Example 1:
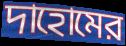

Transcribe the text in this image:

দাহোমের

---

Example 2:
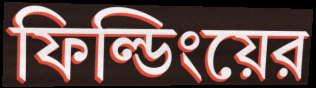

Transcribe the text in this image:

ফিল্ডিংয়ের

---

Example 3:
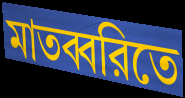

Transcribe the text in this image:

মাতব্বরিতে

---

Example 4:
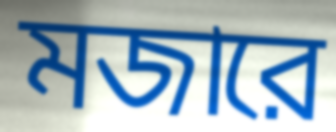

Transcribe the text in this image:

মজারে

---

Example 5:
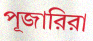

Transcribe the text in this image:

পূজারিরা